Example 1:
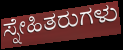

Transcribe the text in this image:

ಸ್ನೇಹಿತರುಗಳು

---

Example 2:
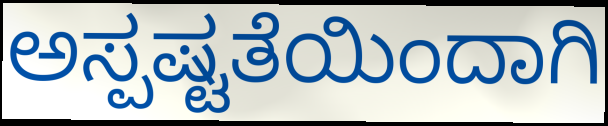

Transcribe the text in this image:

ಅಸ್ಪಷ್ಟತೆಯಿಂದಾಗಿ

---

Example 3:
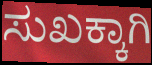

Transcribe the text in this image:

ಸುಖಕ್ಕಾಗಿ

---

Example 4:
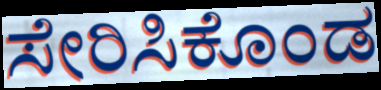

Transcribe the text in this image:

ಸೇರಿಸಿಕೊಂಡ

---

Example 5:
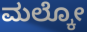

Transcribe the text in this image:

ಮಲ್ಕೋ